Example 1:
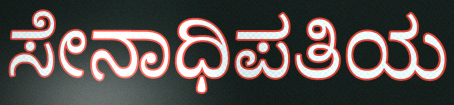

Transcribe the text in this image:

ಸೇನಾಧಿಪತಿಯ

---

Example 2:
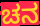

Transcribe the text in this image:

ಚನ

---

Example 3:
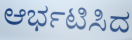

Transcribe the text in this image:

ಆರ್ಭಟಿಸಿದ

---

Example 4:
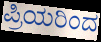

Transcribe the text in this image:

ಪ್ರಿಯರಿಂದ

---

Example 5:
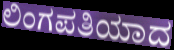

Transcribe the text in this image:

ಲಿಂಗಪತಿಯಾದ